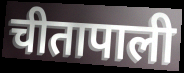
चीतापाली